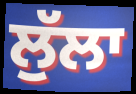
ਲੁੱਲਾ